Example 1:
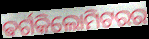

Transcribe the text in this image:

ଵର୍ଗକିଲୋମିଟରର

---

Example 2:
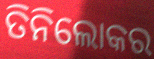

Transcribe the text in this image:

ତିନିଲୋକର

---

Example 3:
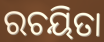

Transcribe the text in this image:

ରଚୟିତା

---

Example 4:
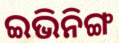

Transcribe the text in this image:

ଇଭିନିଙ୍ଗ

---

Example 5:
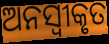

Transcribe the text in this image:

ଅନସ୍ବୀକୃତ